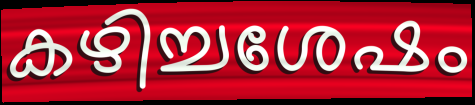
കഴിച്ചശേഷം